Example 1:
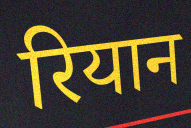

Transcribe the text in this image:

रियान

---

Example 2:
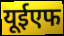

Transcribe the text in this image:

यूईएफ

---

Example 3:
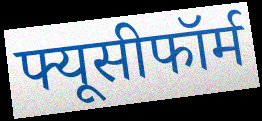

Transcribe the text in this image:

फ्यूसीफॉर्म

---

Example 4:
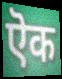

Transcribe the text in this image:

ऎक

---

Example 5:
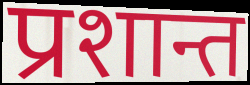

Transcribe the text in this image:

प्रशान्त